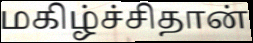
மகிழ்ச்சிதான்